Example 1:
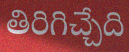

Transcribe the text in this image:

తిరిగిచ్చేది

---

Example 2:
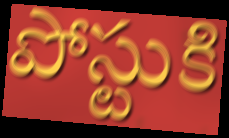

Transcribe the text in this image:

పోస్టుకి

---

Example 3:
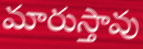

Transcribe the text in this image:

మారుస్తావు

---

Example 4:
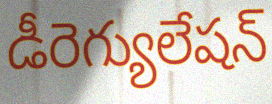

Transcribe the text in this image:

డీరెగ్యులేషన్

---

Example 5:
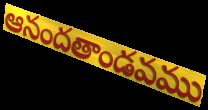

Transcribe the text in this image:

ఆనందతాండవము